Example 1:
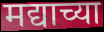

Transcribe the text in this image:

मद्याच्या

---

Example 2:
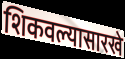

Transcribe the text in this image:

शिकवल्यासारखे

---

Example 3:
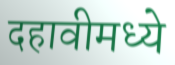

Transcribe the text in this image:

दहावीमध्ये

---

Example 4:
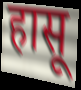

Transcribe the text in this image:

हासू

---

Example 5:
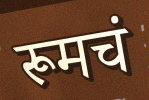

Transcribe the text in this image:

रूमचं